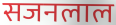
सजनलाल